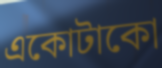
একোটাকো